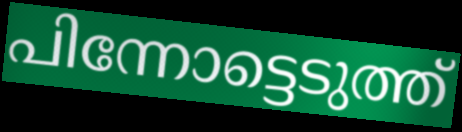
പിന്നോട്ടെടുത്ത്